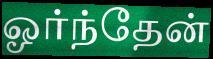
ஓர்ந்தேன்